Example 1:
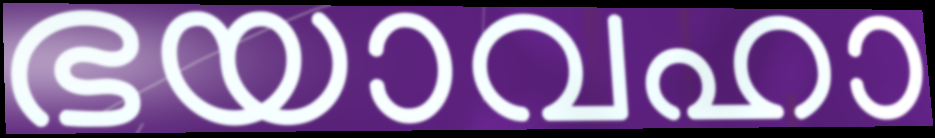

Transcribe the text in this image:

ഭയാവഹാ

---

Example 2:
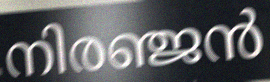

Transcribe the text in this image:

നിരഞ്ജൻ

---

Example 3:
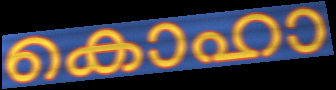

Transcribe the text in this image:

കൊഹാ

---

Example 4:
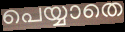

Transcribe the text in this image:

പെയ്യാതെ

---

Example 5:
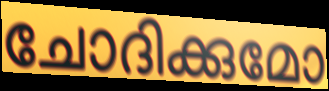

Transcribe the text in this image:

ചോദിക്കുമോ